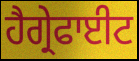
ਹੈਗ੍ਰੇਫਾਈਟ